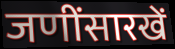
जणींसारखें